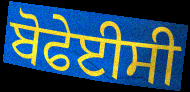
ਬੋਫੇਈਸੀ